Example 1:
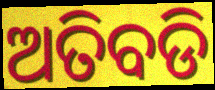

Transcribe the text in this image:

ଅତିବଡି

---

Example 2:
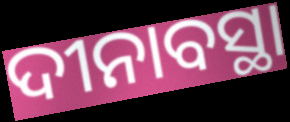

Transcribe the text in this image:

ଦୀନାବସ୍ଥା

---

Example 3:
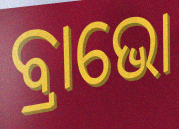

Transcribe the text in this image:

ବ୍ରାଭୋ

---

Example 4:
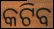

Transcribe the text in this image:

କଟିବ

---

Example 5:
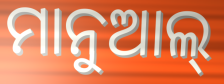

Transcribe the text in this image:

ମାନୁଆଲ୍